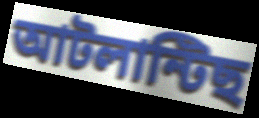
আটলান্টিছ